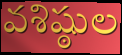
వశిష్ఠుల